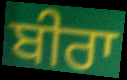
ਬੀਰਾ